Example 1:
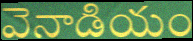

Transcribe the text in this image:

వెనాడియం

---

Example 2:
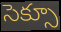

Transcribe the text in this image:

సెక్సూ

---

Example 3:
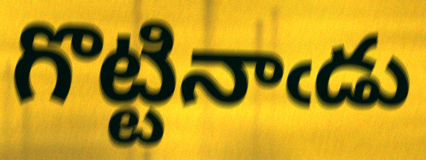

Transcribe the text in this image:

గొట్టినాఁడు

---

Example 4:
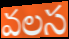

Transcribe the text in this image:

వలస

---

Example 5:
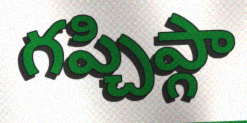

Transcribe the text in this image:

గప్చిప్గా